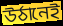
উঠানেই